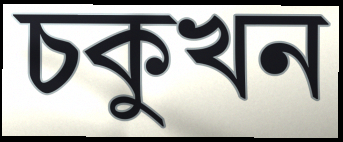
চকুখন